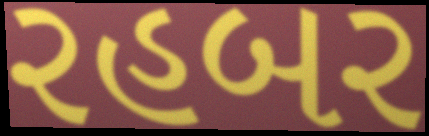
રહબર